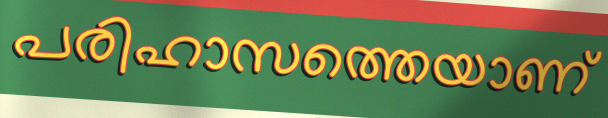
പരിഹാസത്തെയാണ്